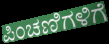
ಪಿಂಚಣಿಗಳಿಗೆ